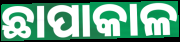
ଛାପାକାଳ